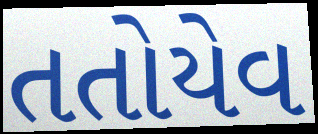
તતોયેવ